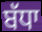
ਬੱਧਾ